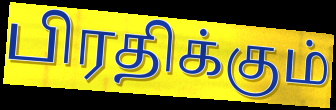
பிரதிக்கும்